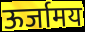
ऊर्जामय